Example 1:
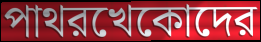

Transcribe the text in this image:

পাথরখেকোদের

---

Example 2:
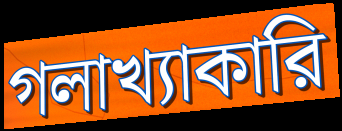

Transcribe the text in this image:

গলাখ্যাকারি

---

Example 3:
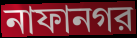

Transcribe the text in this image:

নাফানগর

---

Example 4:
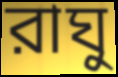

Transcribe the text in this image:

রাঘু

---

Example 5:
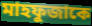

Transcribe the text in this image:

মাহফুজাকে